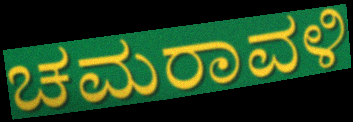
ಚಮರಾವಳಿ